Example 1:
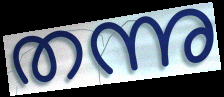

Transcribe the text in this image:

തന്നു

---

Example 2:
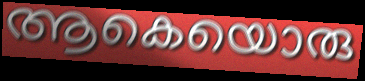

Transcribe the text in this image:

ആകെയൊരു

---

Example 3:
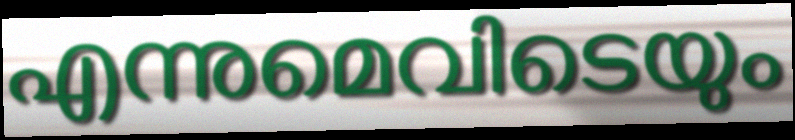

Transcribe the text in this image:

എന്നുമെവിടെയും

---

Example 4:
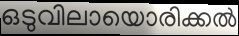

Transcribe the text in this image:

ഒടുവിലായൊരിക്കൽ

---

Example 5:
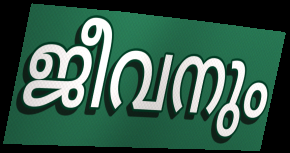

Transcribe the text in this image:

ജീവനും